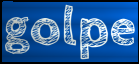
golpe